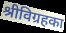
श्रीविग्रहका